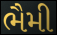
ભૈમી